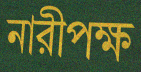
নারীপক্ষ